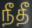
நீதீ